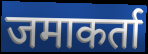
जमाकर्ता